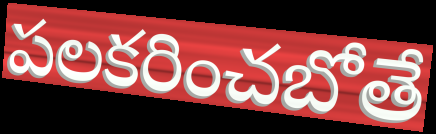
పలకరించబోతే